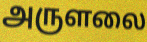
அருளலை